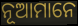
ନୂଆମାନେ